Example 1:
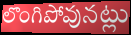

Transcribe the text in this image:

లొంగిపోవునట్లు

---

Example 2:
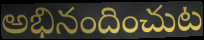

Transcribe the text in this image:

అభినందించుట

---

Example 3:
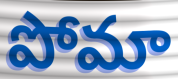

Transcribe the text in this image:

పోమా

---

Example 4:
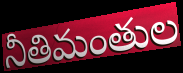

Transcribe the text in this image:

నీతిమంతుల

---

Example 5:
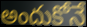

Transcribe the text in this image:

అందుకోనే